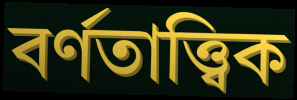
বৰ্ণতাত্ত্বিক